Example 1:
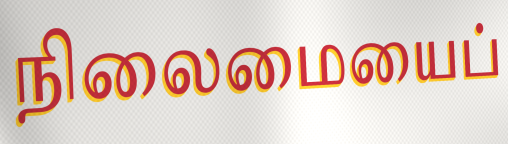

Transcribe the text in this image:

நிலைமையைப்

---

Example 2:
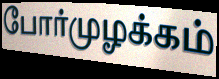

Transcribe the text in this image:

போர்முழக்கம்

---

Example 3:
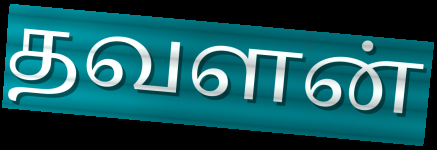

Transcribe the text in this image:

தவளன்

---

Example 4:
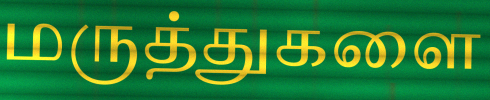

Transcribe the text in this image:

மருத்துகளை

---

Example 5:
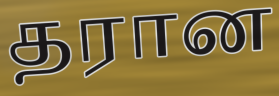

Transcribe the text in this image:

தரான